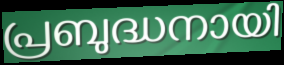
പ്രബുദ്ധനായി